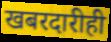
खबरदारीही